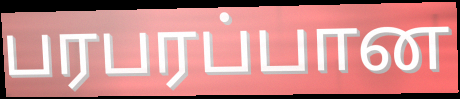
பரபரப்பான